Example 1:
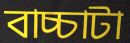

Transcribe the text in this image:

বাচ্চাটা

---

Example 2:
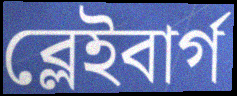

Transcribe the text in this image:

ব্লেইবার্গ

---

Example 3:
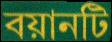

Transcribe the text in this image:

বয়ানটি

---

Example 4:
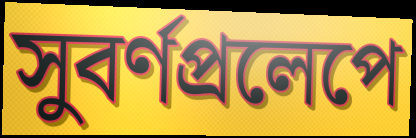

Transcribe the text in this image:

সুবর্ণপ্রলেপে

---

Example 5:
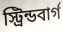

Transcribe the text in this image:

স্ট্রিন্ডবার্গ